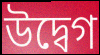
উদ্বেগ